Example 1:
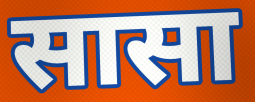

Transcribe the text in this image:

सासा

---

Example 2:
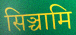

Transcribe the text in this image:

सिञ्चामि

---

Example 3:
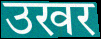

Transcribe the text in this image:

उखर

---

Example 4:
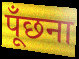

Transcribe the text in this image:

पूँछना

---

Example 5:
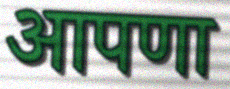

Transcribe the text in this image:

आपणा